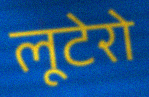
लूटेरो